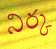
నిర్క